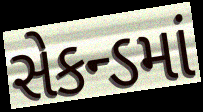
સેકન્ડમાં